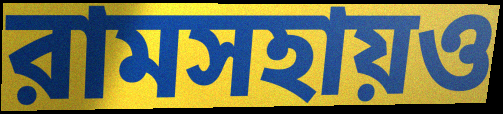
রামসহায়ও